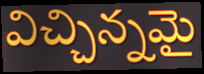
విచ్చిన్నమై